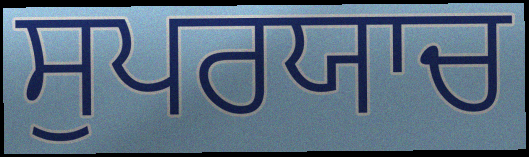
ਸੁਪਰਯਾਚ